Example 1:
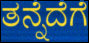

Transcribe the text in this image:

ತನ್ನೆದೆಗೆ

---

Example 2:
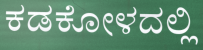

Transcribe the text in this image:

ಕಡಕೋಳದಲ್ಲಿ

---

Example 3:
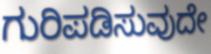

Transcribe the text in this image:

ಗುರಿಪಡಿಸುವುದೇ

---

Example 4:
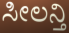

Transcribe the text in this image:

ಸೀಲನ್ತಿ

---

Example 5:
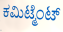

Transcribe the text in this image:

ಕಮಿಟ್ಮೆಂಟ್